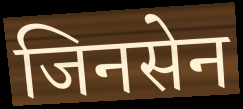
जिनसेन